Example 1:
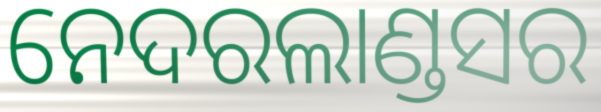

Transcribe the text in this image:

ନେଦରଲାଣ୍ଡସର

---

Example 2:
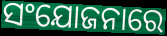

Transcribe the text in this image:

ସଂଯୋଜନାରେ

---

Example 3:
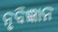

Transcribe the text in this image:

ନୃବିଜ୍ଞାନ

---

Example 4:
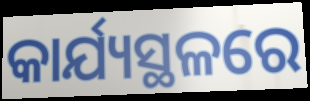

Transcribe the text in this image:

କାର୍ଯ୍ୟସ୍ଥଳରେ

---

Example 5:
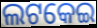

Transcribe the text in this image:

ଲଟକେଇ